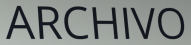
ARCHIVO